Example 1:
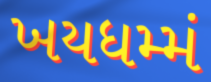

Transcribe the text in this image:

ખયધમ્મં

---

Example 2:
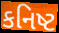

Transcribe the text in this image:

કનિષ્ટ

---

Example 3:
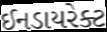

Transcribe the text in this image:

ઈનડાયરેક્ટ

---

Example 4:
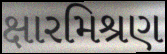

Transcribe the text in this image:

ક્ષારમિશ્રણ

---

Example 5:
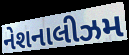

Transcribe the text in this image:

નેશનાલીઝમ